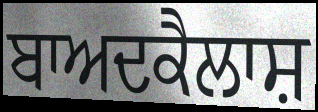
ਬਾਅਦਕੈਲਾਸ਼